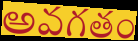
అవగతం